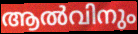
ആൽവിനും